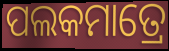
ପଲକମାତ୍ରେ